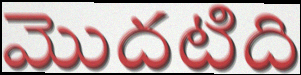
మొదటిది